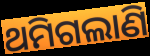
ଥମିଗଲାଣି